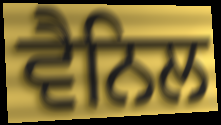
ਵੈਨਿਲ